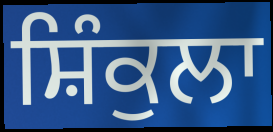
ਸ਼ਿੰਕੁਲਾ